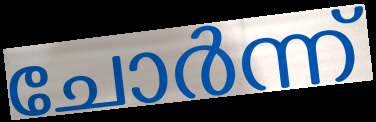
ചോർന്ന്